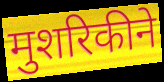
मुशरिकीने